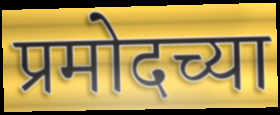
प्रमोदच्या